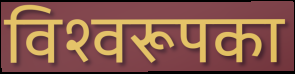
विश्वरूपका